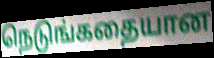
நெடுங்கதையான